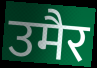
उमैर